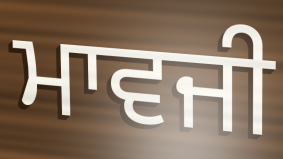
ਮਾਵਜੀ